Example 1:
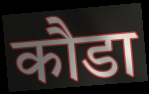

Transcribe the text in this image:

कौडा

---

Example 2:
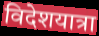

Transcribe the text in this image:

विदेशयात्रा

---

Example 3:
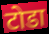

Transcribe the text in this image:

टोडा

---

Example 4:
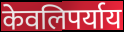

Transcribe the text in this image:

केवलिपर्याय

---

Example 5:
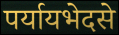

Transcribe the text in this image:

पर्यायभेदसे